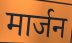
मार्जन